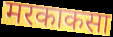
मरकाकसा